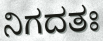
ನಿಗದತಃ